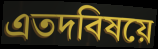
এতদবিষয়ে